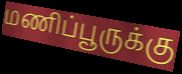
மணிப்பூருக்கு